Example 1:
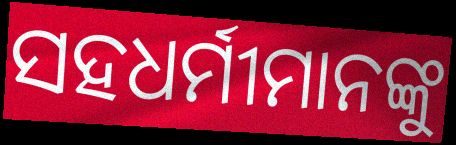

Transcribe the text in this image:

ସହଧର୍ମୀମାନଙ୍କୁ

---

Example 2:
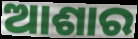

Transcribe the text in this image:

ଆଶାର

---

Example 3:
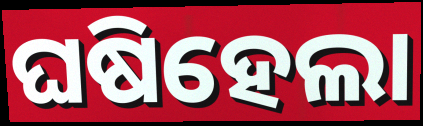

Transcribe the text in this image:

ଘଷିହେଲା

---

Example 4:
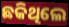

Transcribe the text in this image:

ଛକିଥିଲେ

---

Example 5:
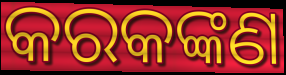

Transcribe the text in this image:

କରକଙ୍କଣ